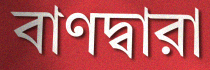
বাণদ্বারা